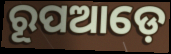
ରୂପଆଡ଼େ